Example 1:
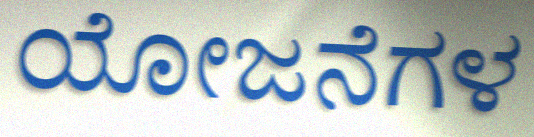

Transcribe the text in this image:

ಯೋಜನೆಗಳ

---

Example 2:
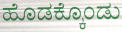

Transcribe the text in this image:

ಹೊಡಕ್ಕೊಂಡು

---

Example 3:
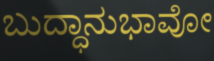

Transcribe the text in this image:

ಬುದ್ಧಾನುಭಾವೋ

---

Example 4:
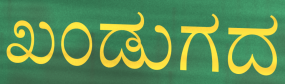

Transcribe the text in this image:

ಖಂಡುಗದ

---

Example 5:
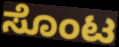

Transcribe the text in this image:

ಸೊಂಟ